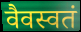
वैवस्वतं